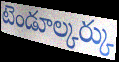
టెండూల్కర్కు